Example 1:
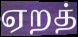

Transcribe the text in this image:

ஏறத்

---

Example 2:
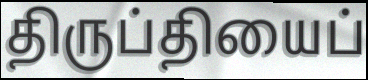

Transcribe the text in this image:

திருப்தியைப்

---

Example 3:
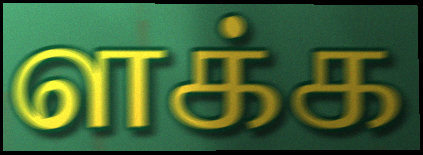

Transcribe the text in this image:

ளக்க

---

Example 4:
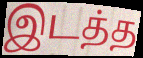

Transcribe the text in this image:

இடத்த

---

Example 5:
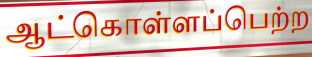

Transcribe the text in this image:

ஆட்கொள்ளப்பெற்ற